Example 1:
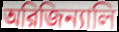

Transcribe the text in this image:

অরিজিন্যালি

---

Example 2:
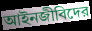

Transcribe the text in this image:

আইনজীবিদের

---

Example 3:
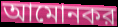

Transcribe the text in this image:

আমোনকর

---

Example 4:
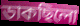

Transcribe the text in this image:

ডাকছিলো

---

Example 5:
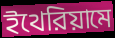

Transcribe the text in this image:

ইথেরিয়ামে